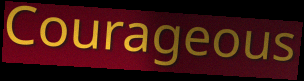
Courageous